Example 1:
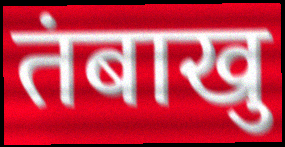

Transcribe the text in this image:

तंबाखु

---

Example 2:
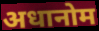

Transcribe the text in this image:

अधानोम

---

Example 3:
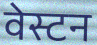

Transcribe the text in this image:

वेस्टन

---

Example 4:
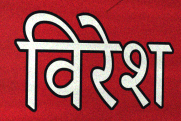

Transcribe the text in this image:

विरेश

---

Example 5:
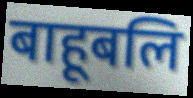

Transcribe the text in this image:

बाहूबलि